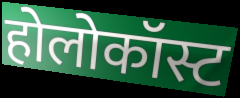
होलोकॉस्ट